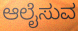
ಆಲೈಸುವ